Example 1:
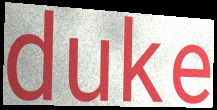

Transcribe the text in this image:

duke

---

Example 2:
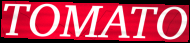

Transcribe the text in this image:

TOMATO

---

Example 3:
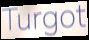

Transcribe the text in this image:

Turgot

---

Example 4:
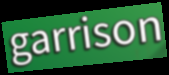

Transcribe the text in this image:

garrison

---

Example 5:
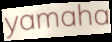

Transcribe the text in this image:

yamaha